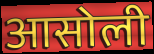
आसोली